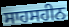
ਸਾਹਸਹੀਨ